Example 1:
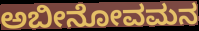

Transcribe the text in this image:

ಅಬೀನೋವಮನ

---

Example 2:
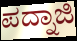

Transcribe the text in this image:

ಪದ್ನಾಜಿ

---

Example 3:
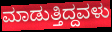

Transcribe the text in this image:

ಮಾಡುತ್ತಿದ್ದವಳು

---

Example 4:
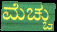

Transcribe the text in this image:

ಮೆಚ್ಚು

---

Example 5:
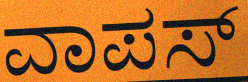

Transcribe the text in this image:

ವಾಪಸ್